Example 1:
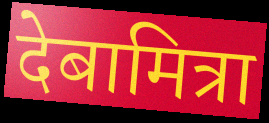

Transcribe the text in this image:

देबामित्रा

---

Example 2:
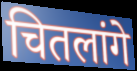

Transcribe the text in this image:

चितलांगे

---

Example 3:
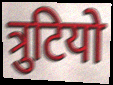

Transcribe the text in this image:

त्रुटियो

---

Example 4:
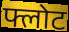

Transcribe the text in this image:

फ्लोट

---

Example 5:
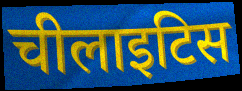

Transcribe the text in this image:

चीलाइटिस